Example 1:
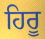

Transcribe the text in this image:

ਹਿਰੂ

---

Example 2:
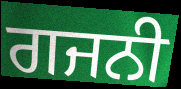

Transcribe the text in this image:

ਗਜਨੀ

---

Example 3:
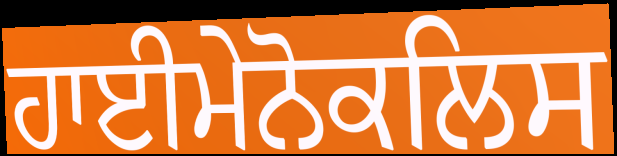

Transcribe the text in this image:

ਹਾਈਮੇਨੋਕਲਿਸ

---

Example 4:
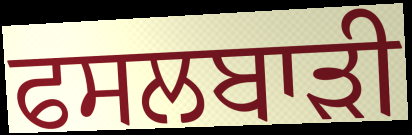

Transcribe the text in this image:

ਫਸਲਬਾੜੀ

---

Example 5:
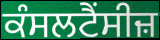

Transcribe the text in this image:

ਕੰਸਲਟੈਂਸੀਜ਼